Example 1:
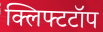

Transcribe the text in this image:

क्लिफ्टटॉप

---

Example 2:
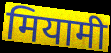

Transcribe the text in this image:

मियामी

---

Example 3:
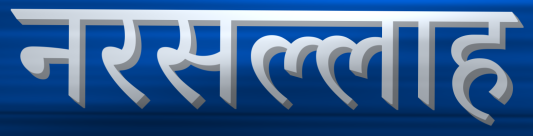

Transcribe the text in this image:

नरसल्लाह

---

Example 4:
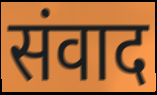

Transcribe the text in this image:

संवाद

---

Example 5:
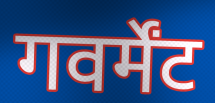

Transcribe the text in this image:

गवर्मेंट